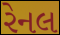
રેનલ